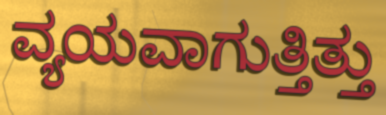
ವ್ಯಯವಾಗುತ್ತಿತ್ತು